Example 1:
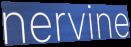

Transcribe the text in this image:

nervine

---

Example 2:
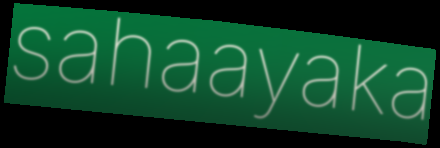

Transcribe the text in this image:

sahaayaka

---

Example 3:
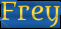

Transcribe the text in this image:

Frey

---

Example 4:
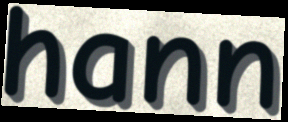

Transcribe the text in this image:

hann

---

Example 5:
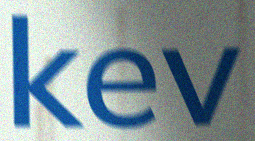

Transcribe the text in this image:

kev